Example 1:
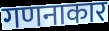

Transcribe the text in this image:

गणनाकार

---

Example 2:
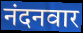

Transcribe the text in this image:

नंदनवार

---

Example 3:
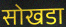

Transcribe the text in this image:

सोखडा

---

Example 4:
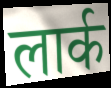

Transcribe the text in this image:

लार्क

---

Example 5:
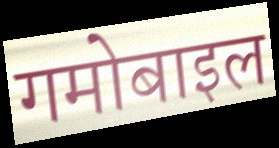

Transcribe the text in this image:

गमोबाइल